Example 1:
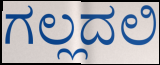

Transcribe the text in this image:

ಗಲ್ಲದಲಿ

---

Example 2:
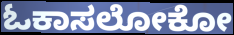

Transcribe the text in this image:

ಓಕಾಸಲೋಕೋ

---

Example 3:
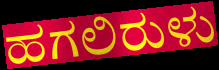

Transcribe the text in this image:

ಹಗಲಿರುಳು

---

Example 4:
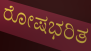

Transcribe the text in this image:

ರೋಷಭರಿತ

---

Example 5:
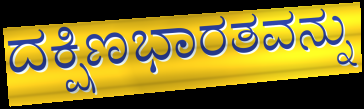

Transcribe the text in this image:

ದಕ್ಷಿಣಭಾರತವನ್ನು